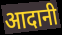
आदानी